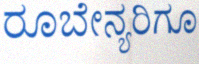
ರೂಬೇನ್ಯರಿಗೂ